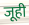
जूही